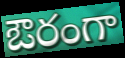
ఔరంగా